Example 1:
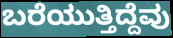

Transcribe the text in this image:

ಬರೆಯುತ್ತಿದ್ದೆವು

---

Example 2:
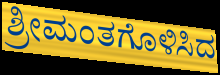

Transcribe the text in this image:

ಶ್ರೀಮಂತಗೊಳಿಸಿದ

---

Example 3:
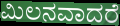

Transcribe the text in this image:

ಮಿಲನವಾದರೆ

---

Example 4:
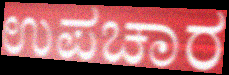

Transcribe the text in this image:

ಉಪಚಾರ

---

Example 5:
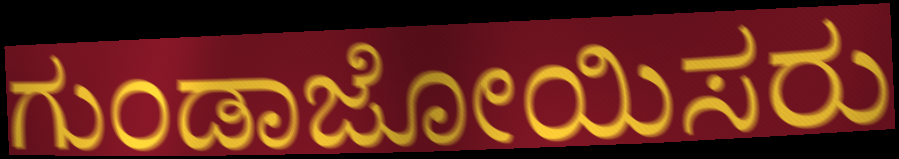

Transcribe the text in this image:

ಗುಂಡಾಜೋಯಿಸರು